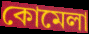
কোমেলা